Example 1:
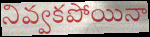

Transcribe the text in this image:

నివ్వకపోయినా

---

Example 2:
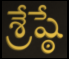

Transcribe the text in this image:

శ్రేష్ఠే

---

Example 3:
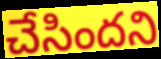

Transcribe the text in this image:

చేసిందని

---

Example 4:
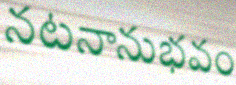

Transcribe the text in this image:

నటనానుభవం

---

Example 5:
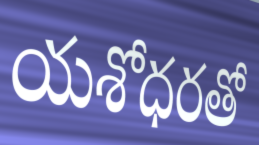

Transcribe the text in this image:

యశోధరతో